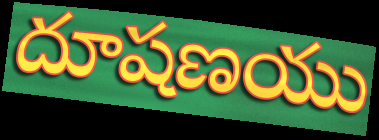
దూషణయు